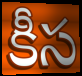
కీస